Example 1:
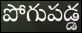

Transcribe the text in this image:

పోగుపడ్డ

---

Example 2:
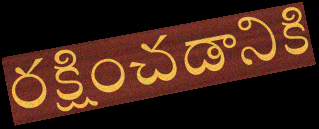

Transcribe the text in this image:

రక్షించడానికి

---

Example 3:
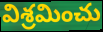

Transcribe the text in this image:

విశ్రమించు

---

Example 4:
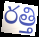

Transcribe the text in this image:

రత్తి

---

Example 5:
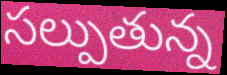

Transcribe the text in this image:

సల్పుతున్న